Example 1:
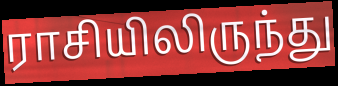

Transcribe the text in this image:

ராசியிலிருந்து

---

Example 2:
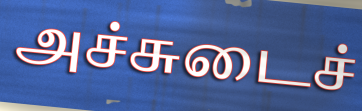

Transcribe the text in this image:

அச்சுடைச்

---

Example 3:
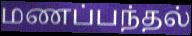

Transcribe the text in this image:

மணப்பந்தல்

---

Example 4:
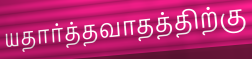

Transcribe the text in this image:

யதார்த்தவாதத்திற்கு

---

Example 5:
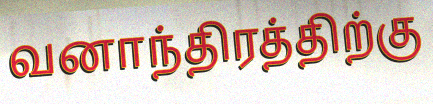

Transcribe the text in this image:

வனாந்திரத்திற்கு